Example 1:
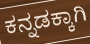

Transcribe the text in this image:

ಕನ್ನಡಕ್ಕಾಗಿ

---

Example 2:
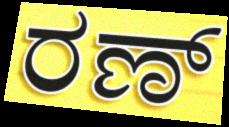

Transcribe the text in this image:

ರಣ್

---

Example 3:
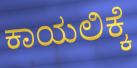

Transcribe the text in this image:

ಕಾಯಲಿಕ್ಕೆ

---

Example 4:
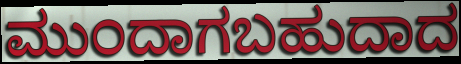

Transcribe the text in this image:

ಮುಂದಾಗಬಹುದಾದ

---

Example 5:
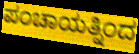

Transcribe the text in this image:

ಪಂಚಾಯತ್ನಿಂದ